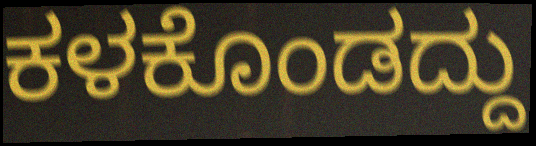
ಕಳಕೊಂಡದ್ದು